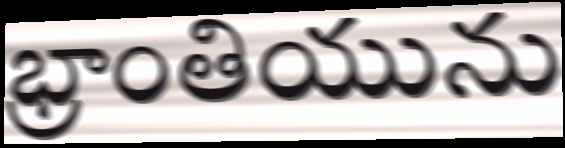
భ్రాంతియును